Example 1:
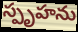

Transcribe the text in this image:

స్పృహను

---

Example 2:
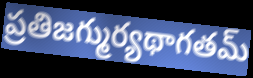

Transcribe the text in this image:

ప్రతిజగ్ముర్యథాగతమ్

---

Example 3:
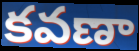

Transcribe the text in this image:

కవణా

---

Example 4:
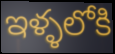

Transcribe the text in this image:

ఇళ్ళలోకి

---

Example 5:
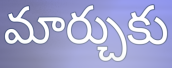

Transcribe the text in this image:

మార్చుకు